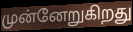
முன்னேறுகிறது